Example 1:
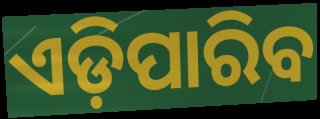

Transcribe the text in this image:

ଏଡ଼ିପାରିବ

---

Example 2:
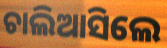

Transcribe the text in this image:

ଚାଲିଆସିଲେ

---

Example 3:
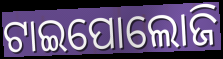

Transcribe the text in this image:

ଟାଇପୋଲୋଜି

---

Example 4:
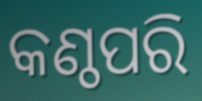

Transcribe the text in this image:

କଣ୍ଠପରି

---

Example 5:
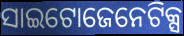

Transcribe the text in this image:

ସାଇଟୋଜେନେଟିକ୍ସ